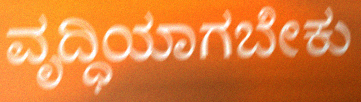
ವೃದ್ಧಿಯಾಗಬೇಕು